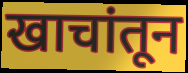
खाचांतून